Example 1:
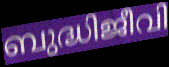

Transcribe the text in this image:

ബുദ്ധിജീവി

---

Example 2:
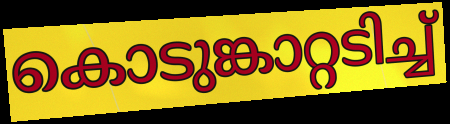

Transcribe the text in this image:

കൊടുങ്കാറ്റടിച്ച്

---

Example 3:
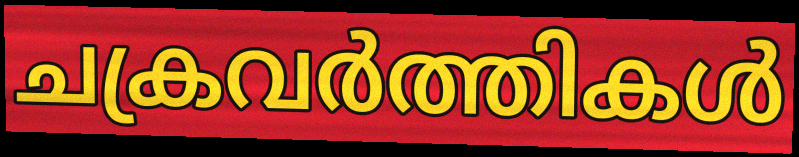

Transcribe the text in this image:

ചക്രവർത്തികൾ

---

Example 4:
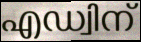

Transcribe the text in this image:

എഡ്വിന്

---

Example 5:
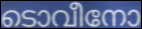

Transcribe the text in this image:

ടൊവീനോ